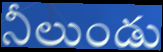
నీలుండు